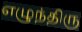
எழுந்திரு